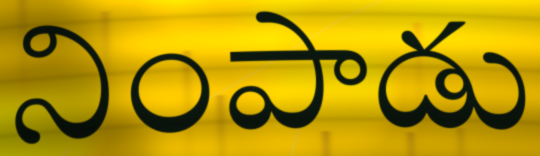
నింపాడు